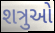
શત્રુઓ